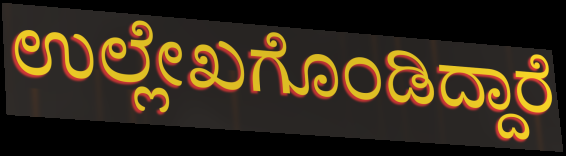
ಉಲ್ಲೇಖಗೊಂಡಿದ್ದಾರೆ